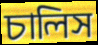
চালিস